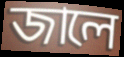
জালে